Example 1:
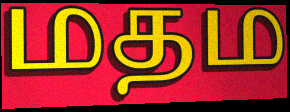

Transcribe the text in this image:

மதம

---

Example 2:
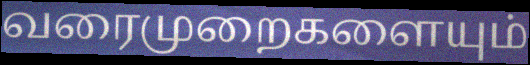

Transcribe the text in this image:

வரைமுறைகளையும்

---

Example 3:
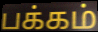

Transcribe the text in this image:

பக்கம்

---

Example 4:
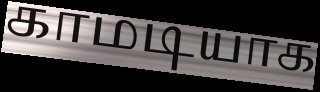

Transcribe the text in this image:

காமடியாக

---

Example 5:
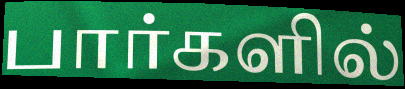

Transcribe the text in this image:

பார்களில்